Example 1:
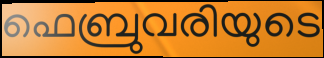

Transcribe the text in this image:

ഫെബ്രുവരിയുടെ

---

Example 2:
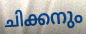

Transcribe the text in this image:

ചിക്കനും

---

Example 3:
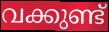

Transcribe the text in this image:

വക്കുണ്ട്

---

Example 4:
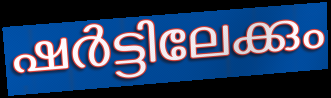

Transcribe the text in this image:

ഷർട്ടിലേക്കും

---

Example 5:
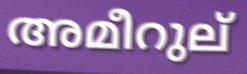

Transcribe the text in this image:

അമീറുല്